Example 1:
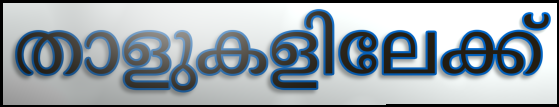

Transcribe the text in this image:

താളുകളിലേക്ക്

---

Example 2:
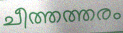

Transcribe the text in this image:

ചീത്തത്തരം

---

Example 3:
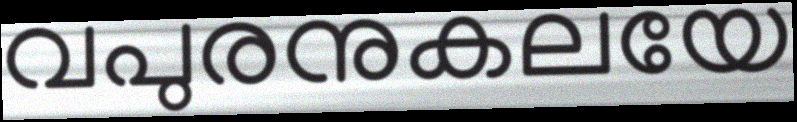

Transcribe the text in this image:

വപുരനുകലയേ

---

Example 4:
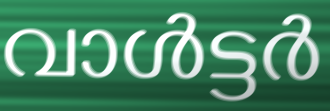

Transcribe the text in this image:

വാൾട്ടർ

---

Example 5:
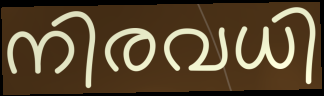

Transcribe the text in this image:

നിരവധി